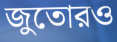
জুতোরও